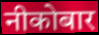
नीकोबार